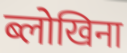
ब्लोखिना